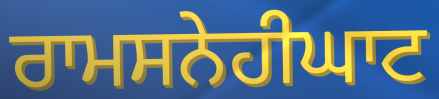
ਰਾਮਸਨੇਹੀਘਾਟ